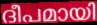
ദീപമായി